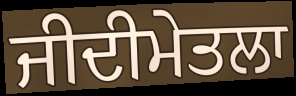
ਜੀਦੀਮੇਤਲਾ